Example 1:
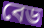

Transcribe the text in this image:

বেড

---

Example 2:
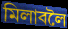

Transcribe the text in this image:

মিলাবলৈ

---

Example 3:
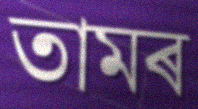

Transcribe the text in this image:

তামৰ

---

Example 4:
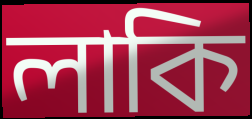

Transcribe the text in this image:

লাকি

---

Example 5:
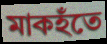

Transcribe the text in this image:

মাকহঁতে